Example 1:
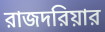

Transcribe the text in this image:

রাজদরিয়ার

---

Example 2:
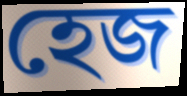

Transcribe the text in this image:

হেজ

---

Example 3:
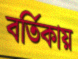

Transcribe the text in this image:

বর্তিকায়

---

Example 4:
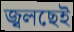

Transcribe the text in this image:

জ্বলছেই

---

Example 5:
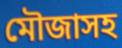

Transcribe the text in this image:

মৌজাসহ